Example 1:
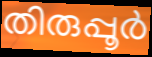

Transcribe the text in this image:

തിരുപ്പൂർ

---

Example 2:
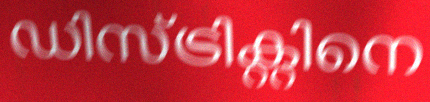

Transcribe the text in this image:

ഡിസ്ട്രിക്റ്റിനെ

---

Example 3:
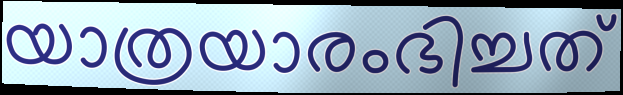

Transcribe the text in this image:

യാത്രയാരംഭിച്ചത്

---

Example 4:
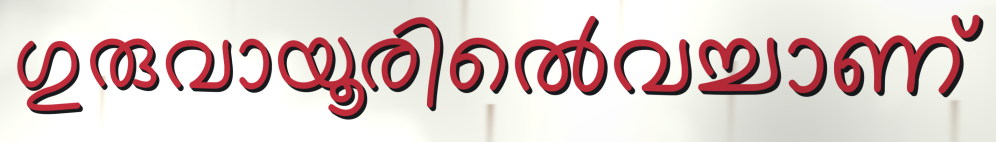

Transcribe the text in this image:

ഗുരുവായൂരിൽെവച്ചാണ്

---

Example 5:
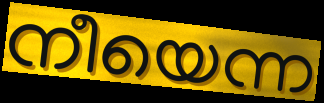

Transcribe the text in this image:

നീയെന്ന